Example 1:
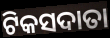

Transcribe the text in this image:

ଟିକସଦାତା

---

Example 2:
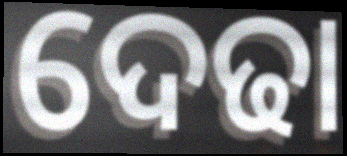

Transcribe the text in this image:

ଦେଢା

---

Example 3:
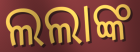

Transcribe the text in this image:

ଲଲାଙ୍କ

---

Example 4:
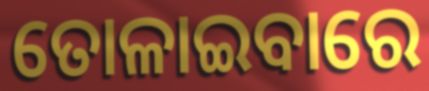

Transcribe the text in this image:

ତୋଳାଇବାରେ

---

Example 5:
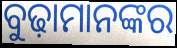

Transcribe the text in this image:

ବୁଢ଼ାମାନଙ୍କର